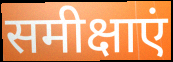
समीक्षाएं